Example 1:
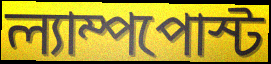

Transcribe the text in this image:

ল্যাম্পপোস্ট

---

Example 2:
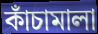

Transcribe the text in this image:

কাঁচামালা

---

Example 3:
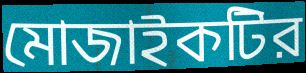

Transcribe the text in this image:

মোজাইকটির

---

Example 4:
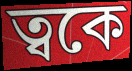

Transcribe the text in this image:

ত্বকে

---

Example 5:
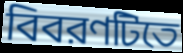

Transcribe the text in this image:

বিবরণটিতে